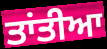
ਤਾਂਤੀਆ